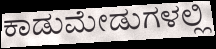
ಕಾಡುಮೇಡುಗಳಲ್ಲಿ